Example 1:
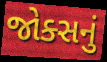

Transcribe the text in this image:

જોક્સનું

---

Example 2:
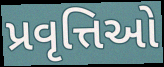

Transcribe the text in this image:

પ્રવૃત્તિઓ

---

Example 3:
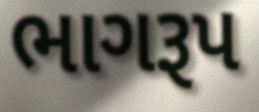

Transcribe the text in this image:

ભાગરૂપ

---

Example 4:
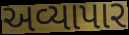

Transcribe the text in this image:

અવ્યાપાર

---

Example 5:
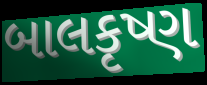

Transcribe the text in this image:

બાલકૃષ્ણ